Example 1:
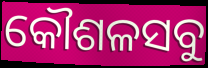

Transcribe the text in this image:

କୌଶଳସବୁ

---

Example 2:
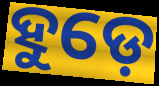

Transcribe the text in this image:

ହୁଡ଼େ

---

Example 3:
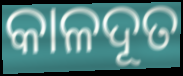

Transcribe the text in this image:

କାଳଦୂତ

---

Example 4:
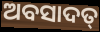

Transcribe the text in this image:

ଅବସାଦତ୍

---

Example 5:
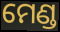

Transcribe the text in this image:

ମେଣ୍ଡ